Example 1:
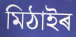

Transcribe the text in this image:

মিঠাইৰ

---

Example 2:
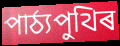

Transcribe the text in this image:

পাঠ্যপুথিৰ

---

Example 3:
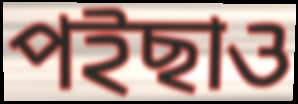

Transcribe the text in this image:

পইছাও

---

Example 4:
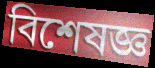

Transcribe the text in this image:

বিশেষজ্ঞ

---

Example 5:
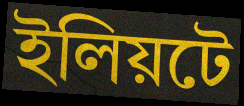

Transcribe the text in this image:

ইলিয়টে